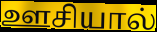
ஊசியால்